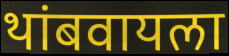
थांबवायला